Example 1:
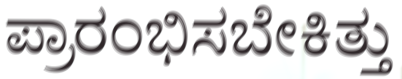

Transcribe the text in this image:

ಪ್ರಾರಂಭಿಸಬೇಕಿತ್ತು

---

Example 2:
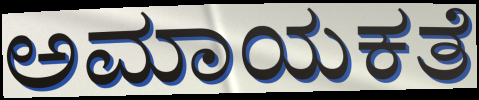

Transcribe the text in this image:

ಅಮಾಯಕತೆ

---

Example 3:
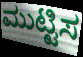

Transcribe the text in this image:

ಮುಟ್ಟಿಸ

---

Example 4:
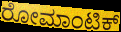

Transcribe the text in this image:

ರೋಮಾಂಟಿಕ್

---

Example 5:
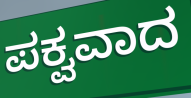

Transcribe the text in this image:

ಪಕ್ವವಾದ